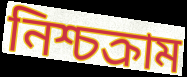
নিশ্চক্রাম